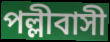
পল্লীবাসী